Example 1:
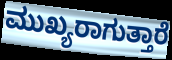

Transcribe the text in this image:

ಮುಖ್ಯರಾಗುತ್ತಾರೆ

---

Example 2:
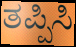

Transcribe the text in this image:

ತಪ್ಪಿಸಿ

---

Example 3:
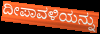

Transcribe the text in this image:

ದೀಪಾವಳಿಯನ್ನು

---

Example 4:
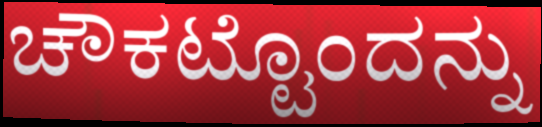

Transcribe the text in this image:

ಚೌಕಟ್ಟೊಂದನ್ನು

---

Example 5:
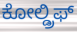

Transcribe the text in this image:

ಕೋಲ್ಡ್ರಿಫ್